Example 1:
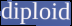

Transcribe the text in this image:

diploid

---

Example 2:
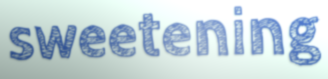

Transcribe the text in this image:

sweetening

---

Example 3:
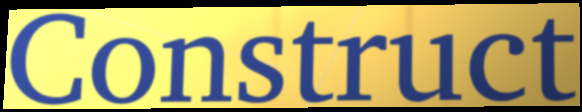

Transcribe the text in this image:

Construct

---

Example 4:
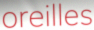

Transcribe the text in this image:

oreilles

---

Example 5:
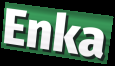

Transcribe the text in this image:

Enka